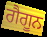
ਗੈਗੂਨ